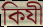
কিযী